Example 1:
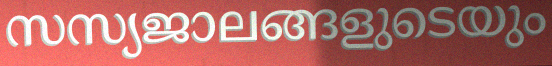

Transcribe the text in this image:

സസ്യജാലങ്ങളുടെയും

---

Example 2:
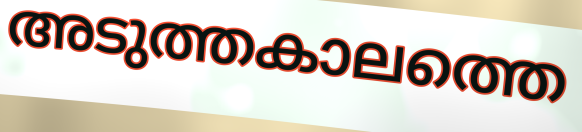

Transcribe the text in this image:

അടുത്തകാലത്തെ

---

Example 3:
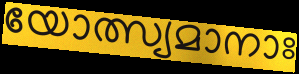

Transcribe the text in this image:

യോത്സ്യമാനാഃ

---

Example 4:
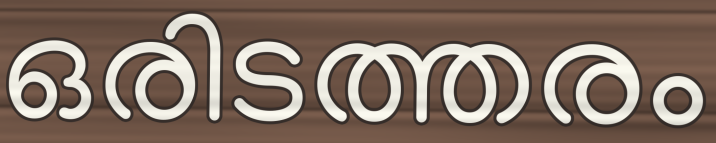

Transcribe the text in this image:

ഒരിടത്തരം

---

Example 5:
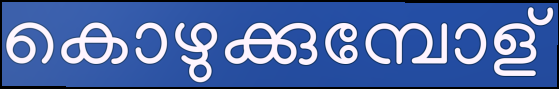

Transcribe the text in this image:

കൊഴുക്കുമ്പോള്